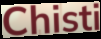
Chisti